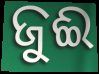
ଜୁଈ